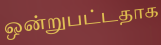
ஒன்றுபட்டதாக